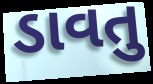
ડાવતુ